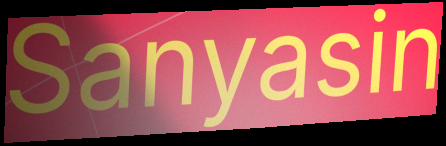
Sanyasin